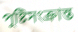
পুষ্টিসংক্রান্ত